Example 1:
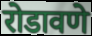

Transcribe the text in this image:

रोडावणे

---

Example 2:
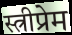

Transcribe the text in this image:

स्त्रीप्रेम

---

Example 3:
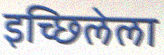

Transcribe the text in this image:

इच्छिलेला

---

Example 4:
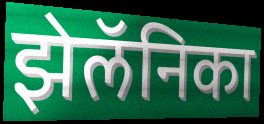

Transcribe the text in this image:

झेलॅनिका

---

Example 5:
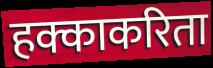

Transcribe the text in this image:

हक्काकरिता